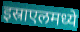
इस्राएलमध्ये